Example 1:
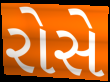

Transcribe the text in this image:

રોસે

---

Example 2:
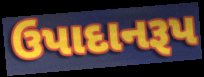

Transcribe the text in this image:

ઉપાદાનરૂપ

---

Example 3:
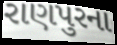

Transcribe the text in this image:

રાણપુરના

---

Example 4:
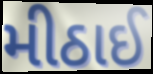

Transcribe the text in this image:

મીઠાઈ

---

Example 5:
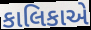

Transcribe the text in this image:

કાલિકાએ